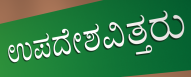
ಉಪದೇಶವಿತ್ತರು